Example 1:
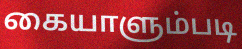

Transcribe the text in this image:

கையாளும்படி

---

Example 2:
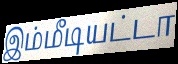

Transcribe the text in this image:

இம்மீடியட்டா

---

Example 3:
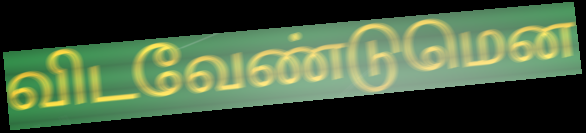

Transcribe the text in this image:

விடவேண்டுமென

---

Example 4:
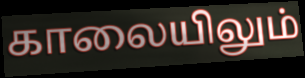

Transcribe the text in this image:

காலையிலும்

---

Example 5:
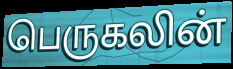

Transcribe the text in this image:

பெருகலின்